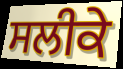
ਸਲੀਕੇ